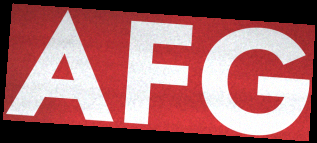
AFG